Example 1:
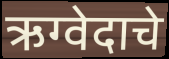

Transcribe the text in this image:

ऋग्वेदाचे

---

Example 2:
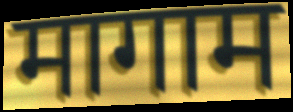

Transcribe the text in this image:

मागाम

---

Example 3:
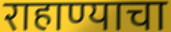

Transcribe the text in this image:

राहाण्याचा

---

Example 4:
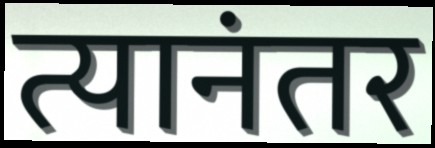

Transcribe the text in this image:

त्यानंतर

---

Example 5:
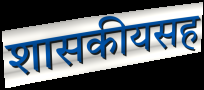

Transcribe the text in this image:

शासकीयसह